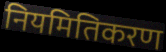
नियमितिकरण